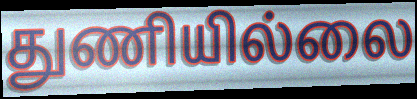
துணியில்லை